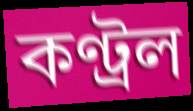
কণ্ট্ৰল